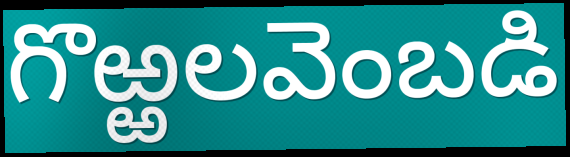
గొఱ్ఱలవెంబడి